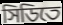
সিডিতে